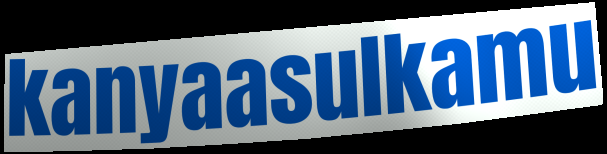
kanyaasulkamu